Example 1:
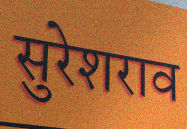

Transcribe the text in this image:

सुरेशराव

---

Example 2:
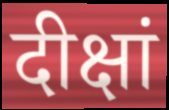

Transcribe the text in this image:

दीक्षां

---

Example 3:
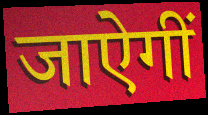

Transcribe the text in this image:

जाऐगीं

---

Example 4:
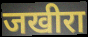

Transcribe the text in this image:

जखीरा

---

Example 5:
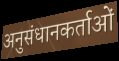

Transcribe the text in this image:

अनुसंधानकर्ताओं